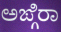
ಅಙ್ಗಿರಾ